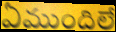
ఏముందిలే